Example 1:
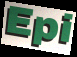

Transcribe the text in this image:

Epi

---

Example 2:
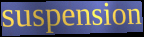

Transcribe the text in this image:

suspension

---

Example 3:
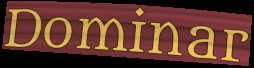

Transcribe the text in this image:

Dominar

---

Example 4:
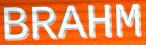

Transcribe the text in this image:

BRAHM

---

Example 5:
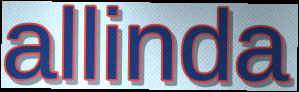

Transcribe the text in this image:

allinda